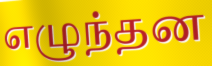
எழுந்தன